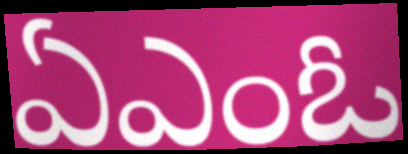
ఏఎంఓ